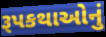
રૂપકથાઓનું